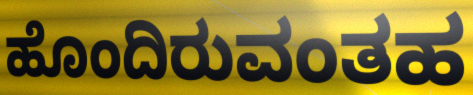
ಹೊಂದಿರುವಂತಹ